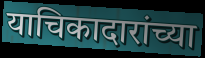
याचिकादारांच्या